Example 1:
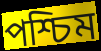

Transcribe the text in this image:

পশ্চিম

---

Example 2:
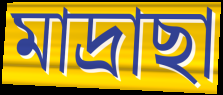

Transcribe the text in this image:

মাদ্ৰাছা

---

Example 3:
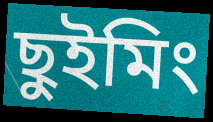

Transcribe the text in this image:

ছুইমিং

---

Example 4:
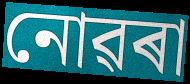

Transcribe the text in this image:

নোৱৰা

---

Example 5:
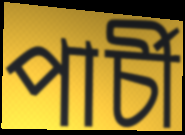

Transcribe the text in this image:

পাৰ্চী